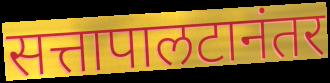
सत्तापालटानंतर